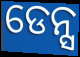
ଡେନ୍ସ